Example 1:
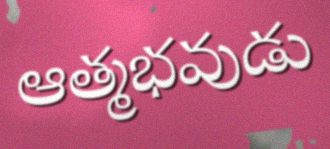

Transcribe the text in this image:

ఆత్మభవుడు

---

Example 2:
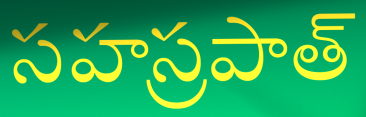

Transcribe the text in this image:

సహస్రపాత్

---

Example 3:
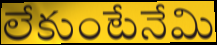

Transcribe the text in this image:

లేకుంటేనేమి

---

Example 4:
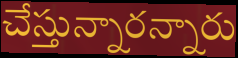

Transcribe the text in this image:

చేస్తున్నారన్నారు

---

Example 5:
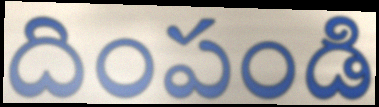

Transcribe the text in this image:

దింపండి